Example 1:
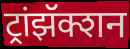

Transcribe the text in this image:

ट्रांझॅक्शन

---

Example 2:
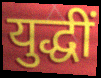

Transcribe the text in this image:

युद्धीं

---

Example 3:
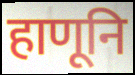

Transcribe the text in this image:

हाणूनि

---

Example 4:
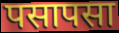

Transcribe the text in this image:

पसापसा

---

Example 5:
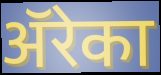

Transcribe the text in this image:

ॲरेका